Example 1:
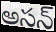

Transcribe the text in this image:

అసన్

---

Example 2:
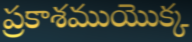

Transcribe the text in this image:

ప్రకాశముయొక్క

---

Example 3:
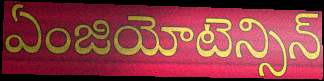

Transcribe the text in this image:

ఏంజియోటెన్సిన్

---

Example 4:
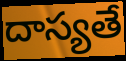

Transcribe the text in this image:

దాస్యతే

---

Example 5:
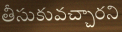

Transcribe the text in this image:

తీసుకువచ్చారని